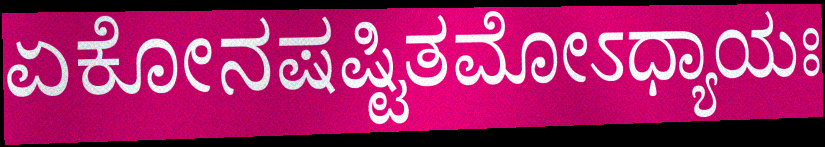
ಏಕೋನಷಷ್ಟಿತಮೋಽಧ್ಯಾಯಃ